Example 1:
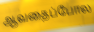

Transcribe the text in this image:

ஆவதைப்போல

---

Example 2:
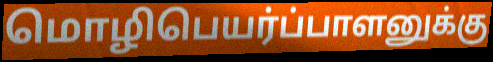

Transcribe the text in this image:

மொழிபெயர்ப்பாளனுக்கு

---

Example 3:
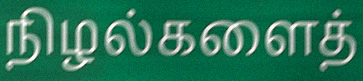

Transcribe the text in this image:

நிழல்களைத்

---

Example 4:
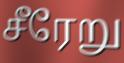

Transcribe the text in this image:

சீரேறு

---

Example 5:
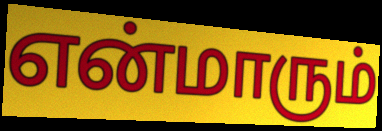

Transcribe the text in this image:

என்மாரும்